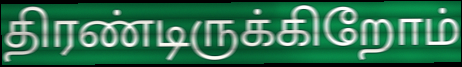
திரண்டிருக்கிறோம்